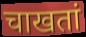
चाखतां